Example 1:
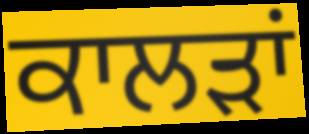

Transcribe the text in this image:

ਕਾਲੜਾਂ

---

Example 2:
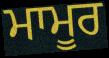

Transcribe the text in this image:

ਮਾਮੂਰ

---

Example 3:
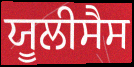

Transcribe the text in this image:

ਯੂਲੀਸੈਸ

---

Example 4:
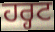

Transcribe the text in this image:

ਹਰ੍ਹਟ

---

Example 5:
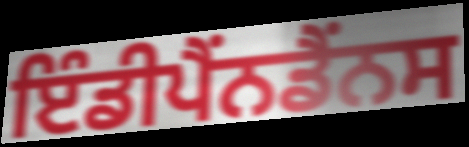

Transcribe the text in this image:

ਇੰਡੀਪੈਂਨਡੈਂਨਸ